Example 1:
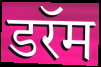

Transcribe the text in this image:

डरॅम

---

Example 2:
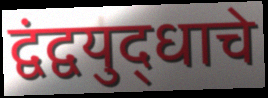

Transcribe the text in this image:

द्वंद्वयुद्धाचे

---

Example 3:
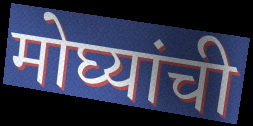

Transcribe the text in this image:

मोघ्यांची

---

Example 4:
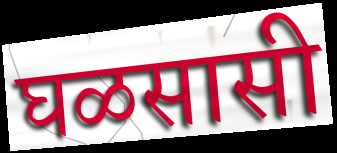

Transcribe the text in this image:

घळसासी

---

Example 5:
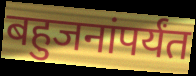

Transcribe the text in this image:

बहुजनांपर्यंत